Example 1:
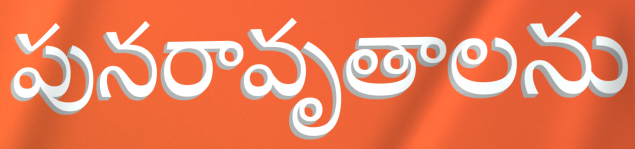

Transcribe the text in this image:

పునరావృతాలను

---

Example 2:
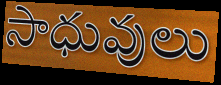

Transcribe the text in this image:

సాధువులు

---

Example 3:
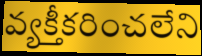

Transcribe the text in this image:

వ్యక్తీకరించలేని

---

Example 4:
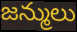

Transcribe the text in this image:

జన్ములు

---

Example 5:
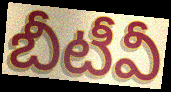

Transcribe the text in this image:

బీటీవీ